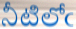
నీటిలోఁ